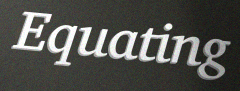
Equating